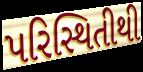
પરિસ્થિતીથી